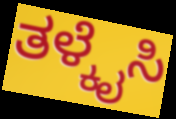
ತಳ್ಕೈಸಿ